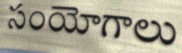
సంయోగాలు